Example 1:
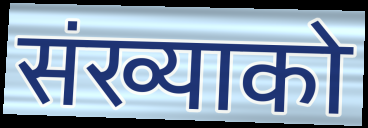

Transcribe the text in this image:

संख्याको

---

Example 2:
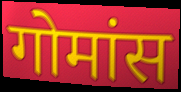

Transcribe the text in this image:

गोमांस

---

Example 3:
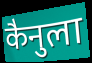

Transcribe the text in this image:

कैनुला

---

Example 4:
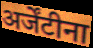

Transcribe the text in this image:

अर्जेंटीना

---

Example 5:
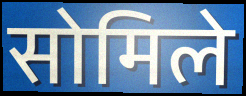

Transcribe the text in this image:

सोमिले